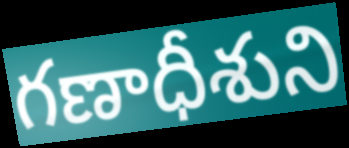
గణాధీశుని